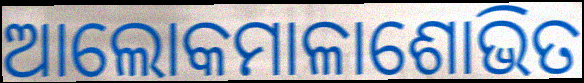
ଆଲୋକମାଳାଶୋଭିତ